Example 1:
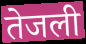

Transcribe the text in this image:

तेजली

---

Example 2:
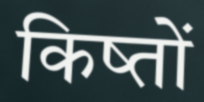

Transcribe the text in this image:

किष्तों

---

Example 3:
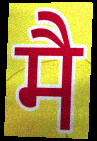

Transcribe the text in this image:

मै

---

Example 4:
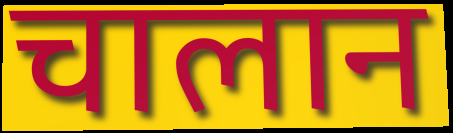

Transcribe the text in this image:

चालान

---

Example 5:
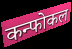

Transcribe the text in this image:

कन्फोकल